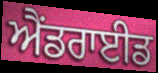
ਐਂਡਰਾਈਡ